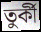
তুর্কী